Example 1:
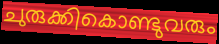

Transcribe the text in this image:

ചുരുക്കികൊണ്ടുവരും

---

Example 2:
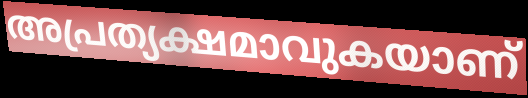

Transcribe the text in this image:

അപ്രത്യക്ഷമാവുകയാണ്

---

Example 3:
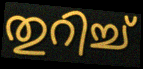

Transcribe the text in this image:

തുറിച്ച്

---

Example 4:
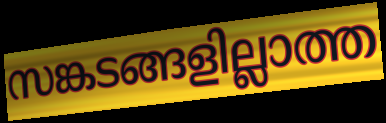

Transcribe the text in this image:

സങ്കടങ്ങളില്ലാത്ത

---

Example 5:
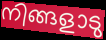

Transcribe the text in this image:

നിങ്ങളാടു